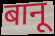
बानू